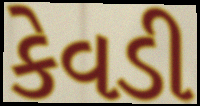
કેવડી